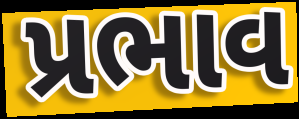
પ્રભાવ